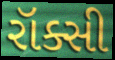
રૉક્સી